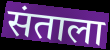
संताला